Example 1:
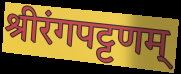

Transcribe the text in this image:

श्रीरंगपट्टणम्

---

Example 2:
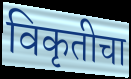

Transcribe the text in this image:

विकृतीचा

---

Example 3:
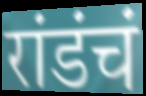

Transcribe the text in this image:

रांडंचं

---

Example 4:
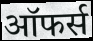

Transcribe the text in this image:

ऑफर्स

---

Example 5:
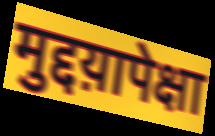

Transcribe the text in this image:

मुद्दय़ापेक्षा